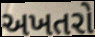
અખતરો